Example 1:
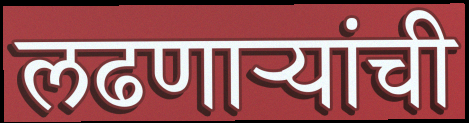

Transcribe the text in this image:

लढणाऱ्यांची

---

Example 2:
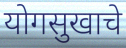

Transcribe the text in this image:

योगसुखाचे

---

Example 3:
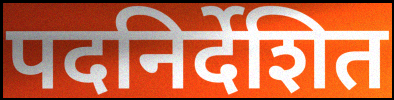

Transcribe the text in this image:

पदनिर्देशित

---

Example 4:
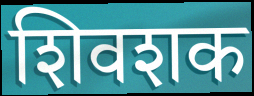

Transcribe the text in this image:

शिवशक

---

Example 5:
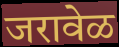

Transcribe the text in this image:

जरावेळ